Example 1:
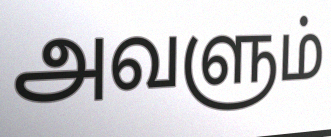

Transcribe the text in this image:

அவளும்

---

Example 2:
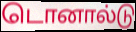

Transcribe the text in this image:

டொனால்டு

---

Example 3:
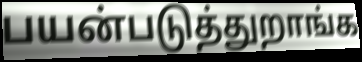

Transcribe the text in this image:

பயன்படுத்துறாங்க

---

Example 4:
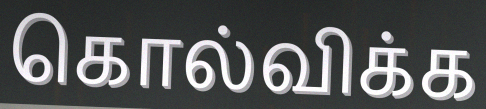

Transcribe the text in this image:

கொல்விக்க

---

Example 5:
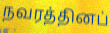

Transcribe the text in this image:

நவரத்தினப்